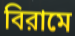
বিরামে